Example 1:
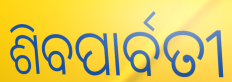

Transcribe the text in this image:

ଶିବପାର୍ବତୀ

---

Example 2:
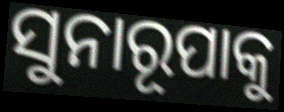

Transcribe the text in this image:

ସୁନାରୂପାକୁ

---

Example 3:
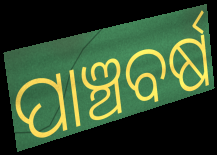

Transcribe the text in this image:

ପାଞ୍ଚବର୍ଷ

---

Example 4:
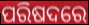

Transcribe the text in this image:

ପରିଷଦରେ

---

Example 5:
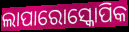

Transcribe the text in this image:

ଲାପାରୋସ୍କୋପିକ